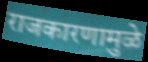
राजकारणामुळे